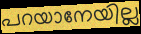
പറയാനേയില്ല